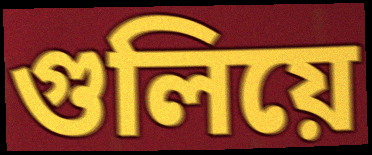
গুলিয়ে